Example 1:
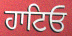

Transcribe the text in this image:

ਹਾਟਿਓ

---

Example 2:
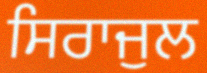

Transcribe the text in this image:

ਸਿਰਾਜੁਲ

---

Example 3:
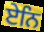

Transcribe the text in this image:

ਏਨਿ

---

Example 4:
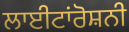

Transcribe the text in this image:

ਲਾਈਟਾਂਰੋਸ਼ਨੀ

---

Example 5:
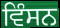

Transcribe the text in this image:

ਵਿੰਸਨ